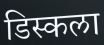
डिस्कला